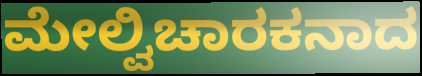
ಮೇಲ್ವಿಚಾರಕನಾದ